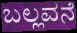
ಬಲ್ಲವನೆ